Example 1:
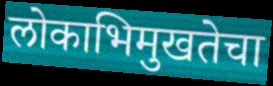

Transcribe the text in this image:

लोकाभिमुखतेचा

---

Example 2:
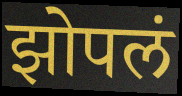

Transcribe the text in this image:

झोपलं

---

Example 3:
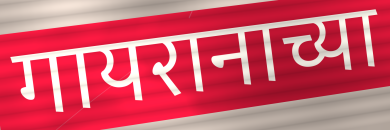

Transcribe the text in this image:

गायरानाच्या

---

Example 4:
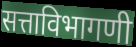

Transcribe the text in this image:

सत्ताविभागणी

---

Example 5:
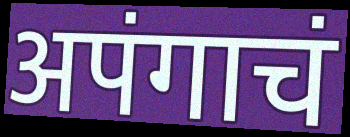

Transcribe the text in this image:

अपंगाचं